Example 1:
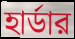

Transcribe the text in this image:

হার্ডার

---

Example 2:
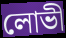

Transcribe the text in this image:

লোভী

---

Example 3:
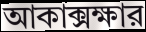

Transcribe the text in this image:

আকাক্সক্ষার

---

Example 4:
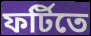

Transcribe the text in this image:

ফর্টিতে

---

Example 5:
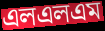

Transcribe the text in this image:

এলএলএম